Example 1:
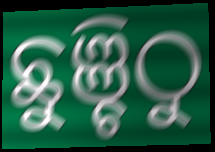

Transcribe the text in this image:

ଛୁଞ୍ଚିଠୁ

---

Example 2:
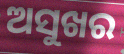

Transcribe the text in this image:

ଅସୁଖର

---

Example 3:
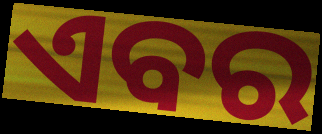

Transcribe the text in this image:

ଏବର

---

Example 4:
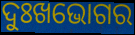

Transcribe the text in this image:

ଦୁଃଖଭୋଗର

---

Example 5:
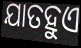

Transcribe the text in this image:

ଯାତହୁଏ